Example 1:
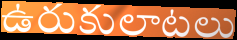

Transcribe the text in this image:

ఉరుకులాటలు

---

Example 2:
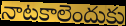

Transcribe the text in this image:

నాటకాలెందుకు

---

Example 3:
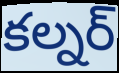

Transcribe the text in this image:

కల్నర్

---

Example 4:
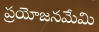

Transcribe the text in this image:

ప్రయోజనమేమి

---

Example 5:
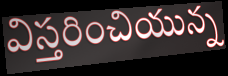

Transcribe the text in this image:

విస్తరించియున్న